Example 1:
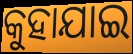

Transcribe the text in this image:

କୁହାଯାଇ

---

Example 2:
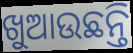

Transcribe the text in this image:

ଖୁଆଉଛନ୍ତି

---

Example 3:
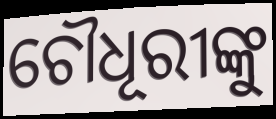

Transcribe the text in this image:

ଚୌଧୂରୀଙ୍କୁ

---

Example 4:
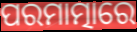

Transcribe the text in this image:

ପରମାତ୍ମାରେ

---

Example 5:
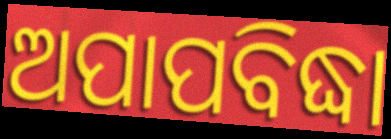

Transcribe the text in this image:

ଅପାପବିଦ୍ଧା